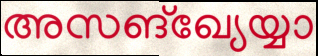
അസങ്ഖ്യേയ്യാ